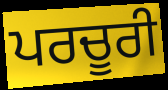
ਪਰਚੂਰੀ